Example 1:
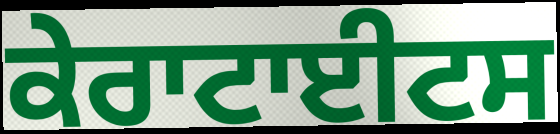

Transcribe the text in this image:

ਕੇਰਾਟਾਈਟਸ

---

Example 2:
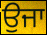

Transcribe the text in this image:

ਉਜਾ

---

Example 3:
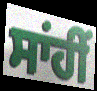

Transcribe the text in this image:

ਸਾਂਹੀਂ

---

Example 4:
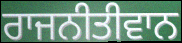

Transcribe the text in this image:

ਰਾਜਨੀਤੀਵਾਨ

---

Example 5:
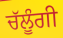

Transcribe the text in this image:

ਚੱਲੂੰਗੀ